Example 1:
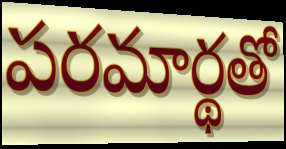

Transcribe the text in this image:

పరమార్థతో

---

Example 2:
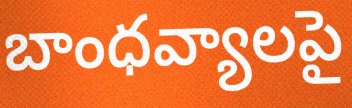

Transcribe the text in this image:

బాంధవ్యాలపై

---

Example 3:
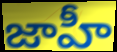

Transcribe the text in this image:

జాహీ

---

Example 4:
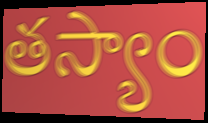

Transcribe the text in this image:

తస్యాం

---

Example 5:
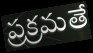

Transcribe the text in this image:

ప్రక్రమతే